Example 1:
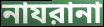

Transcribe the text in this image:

নাযরানা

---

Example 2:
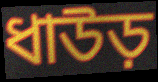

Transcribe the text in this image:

ধাউড়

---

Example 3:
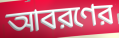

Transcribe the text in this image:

আবরণের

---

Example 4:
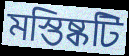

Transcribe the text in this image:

মস্তিষ্কটি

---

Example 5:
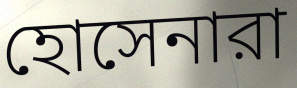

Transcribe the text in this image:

হোসেনারা